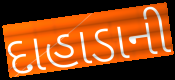
દાહાડાની